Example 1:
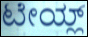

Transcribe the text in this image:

ಟೇಯ್ಲ್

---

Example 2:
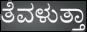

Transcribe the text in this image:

ತೆವಳುತ್ತಾ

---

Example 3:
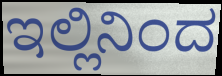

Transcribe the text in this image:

ಇಲ್ಲಿನಿಂದ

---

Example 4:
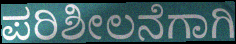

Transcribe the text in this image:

ಪರಿಶೀಲನೆಗಾಗಿ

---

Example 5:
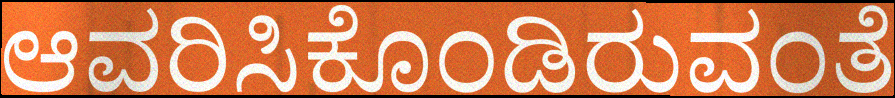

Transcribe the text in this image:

ಆವರಿಸಿಕೊಂಡಿರುವಂತೆ